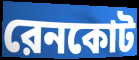
রেনকোট